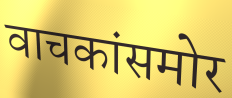
वाचकांसमोर